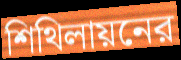
শিথিলায়নের